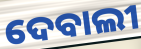
ଦେବାଲୀ